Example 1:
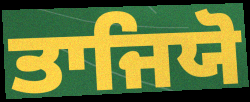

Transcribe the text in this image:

ਤਾਜਿਯੋ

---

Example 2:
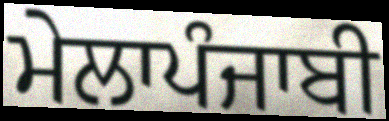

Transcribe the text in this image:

ਮੇਲਾਪੰਜਾਬੀ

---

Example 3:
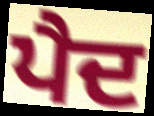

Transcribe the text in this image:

ਪੈਦ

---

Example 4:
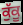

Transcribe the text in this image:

ਕੁੱਕੂ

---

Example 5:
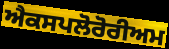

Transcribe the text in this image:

ਐਕਸਪਲੋਰੋਰੀਅਮ